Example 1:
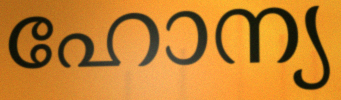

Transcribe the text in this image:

ഹോന്യ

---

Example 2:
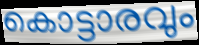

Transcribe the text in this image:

കൊട്ടാരവും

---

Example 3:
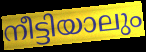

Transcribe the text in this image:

നീട്ടിയാലും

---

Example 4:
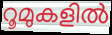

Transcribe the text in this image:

റൂമുകളിൽ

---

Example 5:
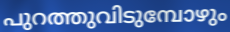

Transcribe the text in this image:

പുറത്തുവിടുമ്പോഴും